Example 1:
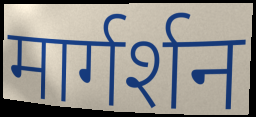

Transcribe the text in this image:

मार्गर्शन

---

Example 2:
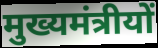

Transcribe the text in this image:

मुख्यमंत्रीयों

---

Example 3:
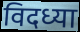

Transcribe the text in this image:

विदध्या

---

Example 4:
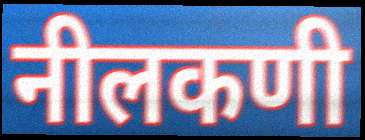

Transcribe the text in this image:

नीलकणी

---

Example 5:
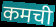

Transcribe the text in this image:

कमची